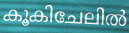
കൂകിചേലിൽ